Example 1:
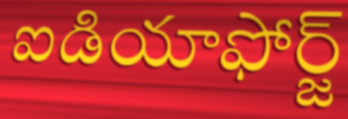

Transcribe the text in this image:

ఐడియాఫోర్జ్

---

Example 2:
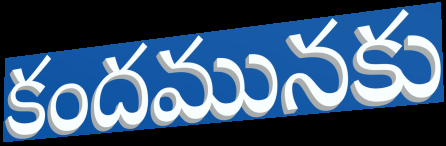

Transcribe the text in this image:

కందమునకు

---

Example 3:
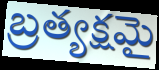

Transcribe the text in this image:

బ్రత్యక్షమై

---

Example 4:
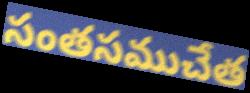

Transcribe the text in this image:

సంతసముచేత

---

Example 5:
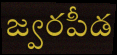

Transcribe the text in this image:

జ్వరపీడ